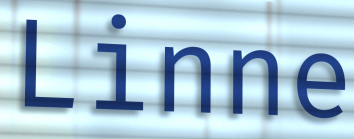
Linne